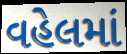
વહેલમાં